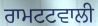
ਰਾਮਟਟਵਾਲੀ